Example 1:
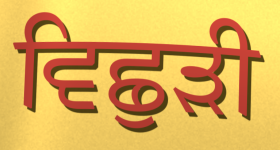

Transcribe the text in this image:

ਵਿਛੁੜੀ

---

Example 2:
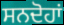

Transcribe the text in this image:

ਸਨਦੋਹਾਂ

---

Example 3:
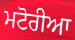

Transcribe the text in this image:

ਮਟੋਰੀਆ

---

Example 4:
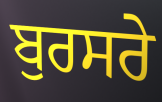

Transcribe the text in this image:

ਬੁਰਸਰੇ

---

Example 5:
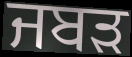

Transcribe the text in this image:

ਜਬੜ